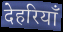
देहरियाँ